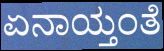
ಏನಾಯ್ತಂತೆ